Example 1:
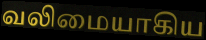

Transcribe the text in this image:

வலிமையாகிய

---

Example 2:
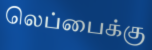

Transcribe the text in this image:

லெப்பைக்கு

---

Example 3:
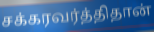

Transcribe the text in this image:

சக்கரவர்த்திதான்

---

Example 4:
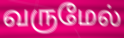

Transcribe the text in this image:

வருமேல்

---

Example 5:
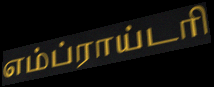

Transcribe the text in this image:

எம்ப்ராய்டரி